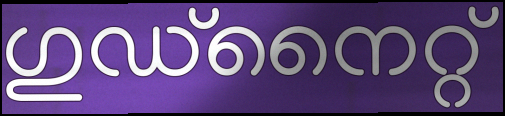
ഗുഡ്നൈറ്റ്